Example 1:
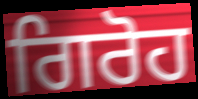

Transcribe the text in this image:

ਗਿਰੋਹ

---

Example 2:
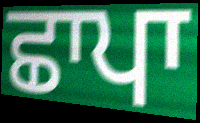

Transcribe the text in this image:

ਛਾਪਾ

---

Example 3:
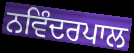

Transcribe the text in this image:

ਨਵਿੰਦਰਪਾਲ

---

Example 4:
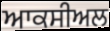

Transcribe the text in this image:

ਆਕਸੀਅਲ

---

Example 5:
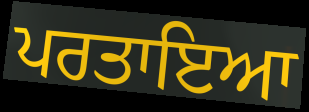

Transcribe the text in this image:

ਪਰਤਾਇਆ